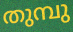
തുമ്പു